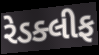
રેડક્લીફ